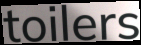
toilers